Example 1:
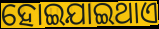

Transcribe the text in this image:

ହୋଇଯାଇଥାଏ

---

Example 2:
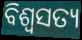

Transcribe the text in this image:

ବିଶ୍ୱସତ୍ୟ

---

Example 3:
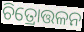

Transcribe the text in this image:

ଚିତ୍ରୋତ୍ତଳନ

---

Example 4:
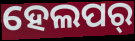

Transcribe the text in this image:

ହେଲପର୍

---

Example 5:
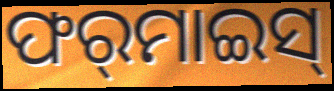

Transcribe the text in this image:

ଫର୍‌ମାଇସ୍